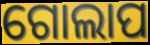
ଗୋଲାପ